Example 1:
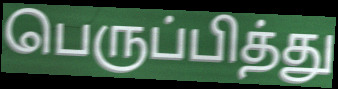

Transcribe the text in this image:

பெருப்பித்து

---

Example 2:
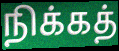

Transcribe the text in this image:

நிக்கத்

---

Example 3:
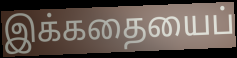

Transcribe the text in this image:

இக்கதையைப்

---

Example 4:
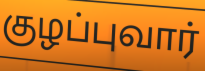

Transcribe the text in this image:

குழப்புவார்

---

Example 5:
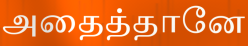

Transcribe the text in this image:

அதைத்தானே